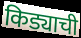
किड्याची